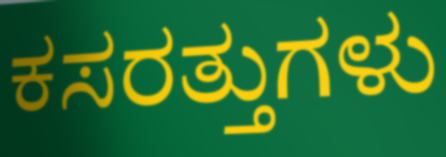
ಕಸರತ್ತುಗಳು